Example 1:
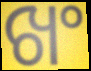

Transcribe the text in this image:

ଖଂ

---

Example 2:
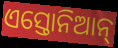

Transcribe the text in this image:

ଏସ୍ତୋନିଆନ୍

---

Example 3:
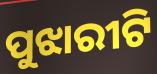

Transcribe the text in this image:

ପୁଝାରୀଟି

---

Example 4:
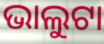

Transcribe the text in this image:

ଭାଲୁଟା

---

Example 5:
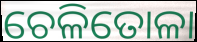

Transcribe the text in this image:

ଚେଳିତୋଳା